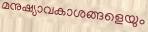
മനുഷ്യാവകാശങ്ങളെയും